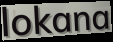
lokana